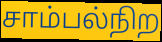
சாம்பல்நிற